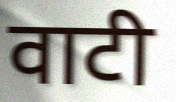
वाटी